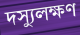
দস্যুলক্ষণ